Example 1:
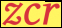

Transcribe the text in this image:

zcr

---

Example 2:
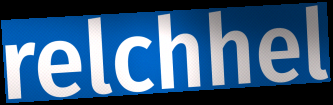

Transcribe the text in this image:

relchhel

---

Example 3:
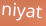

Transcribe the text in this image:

niyat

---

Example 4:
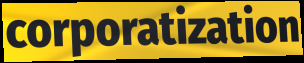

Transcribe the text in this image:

corporatization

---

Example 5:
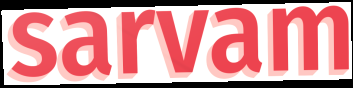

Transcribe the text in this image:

sarvam